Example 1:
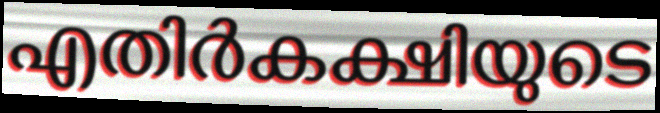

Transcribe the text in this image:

എതിർകക്ഷിയുടെ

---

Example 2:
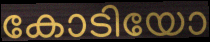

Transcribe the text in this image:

കോടിയോ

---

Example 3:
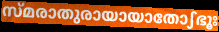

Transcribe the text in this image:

സ്മരാതുരായായാതോഽഭൂഃ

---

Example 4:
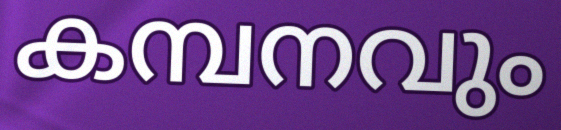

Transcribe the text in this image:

കമ്പനവും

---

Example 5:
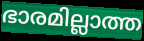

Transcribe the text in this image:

ഭാരമില്ലാത്ത